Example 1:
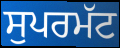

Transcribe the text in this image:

ਸੁਪਰਮੱਟ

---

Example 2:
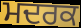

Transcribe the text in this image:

ਮਦਰਕ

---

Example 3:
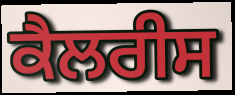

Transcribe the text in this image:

ਕੈਲਰੀਸ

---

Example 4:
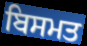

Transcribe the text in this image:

ਬਿਸਮਤ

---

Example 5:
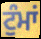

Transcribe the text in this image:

ਟੁੰਮਾਂ